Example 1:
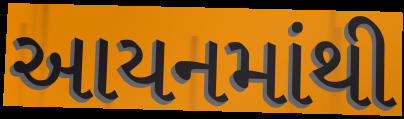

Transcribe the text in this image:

આયનમાંથી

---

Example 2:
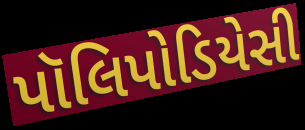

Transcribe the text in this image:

પૉલિપોડિયેસી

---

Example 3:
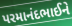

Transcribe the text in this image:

પરમાનંદભાઈને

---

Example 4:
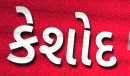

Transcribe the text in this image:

કેશોદ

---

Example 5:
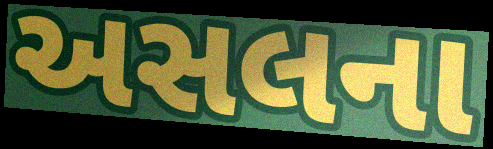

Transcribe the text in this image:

અસલના